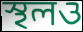
স্থলও